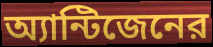
অ্যান্টিজেনের